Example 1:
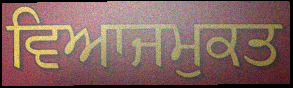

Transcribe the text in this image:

ਵਿਆਜਮੁਕਤ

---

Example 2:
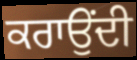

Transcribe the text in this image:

ਕਰਾਉਂਦੀ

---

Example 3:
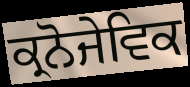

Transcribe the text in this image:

ਕ੍ਰਨੋਜੇਵਿਕ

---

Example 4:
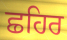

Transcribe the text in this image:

ਛਹਿਰ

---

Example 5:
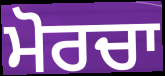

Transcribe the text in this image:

ਮੋਰਚਾ